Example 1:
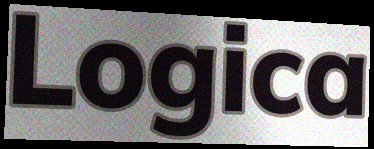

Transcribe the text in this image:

Logica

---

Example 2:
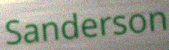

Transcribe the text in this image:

Sanderson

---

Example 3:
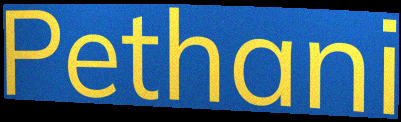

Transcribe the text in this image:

Pethani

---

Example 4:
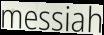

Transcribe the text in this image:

messiah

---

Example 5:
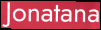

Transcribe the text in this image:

Jonatana